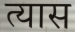
त्‍यास